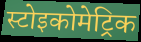
स्टोइकोमेट्रिक